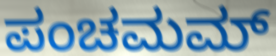
ಪಂಚಮಮ್